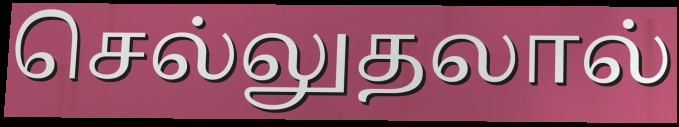
செல்லுதலால்